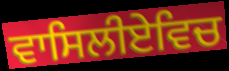
ਵਾਸਿਲੀਏਵਿਚ